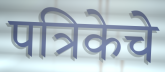
पत्रिकेचे